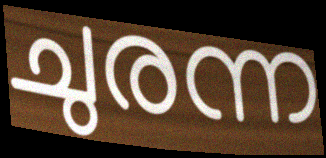
ചുരന്ന